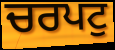
ਚਰਪਟੁ